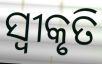
ସ୍ବୀକୃତି